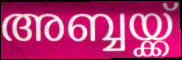
അബ്ബയ്ക്ക്